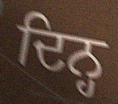
ਦਿਨ੍ਹ